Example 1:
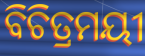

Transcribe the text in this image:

ବିଚିତ୍ରମୟୀ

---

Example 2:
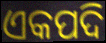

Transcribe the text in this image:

ଏକପଦି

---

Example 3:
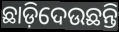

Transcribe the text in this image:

ଛାଡ଼ିଦେଉଛନ୍ତି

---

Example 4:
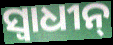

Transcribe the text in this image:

ସ୍ଵାଧୀନ୍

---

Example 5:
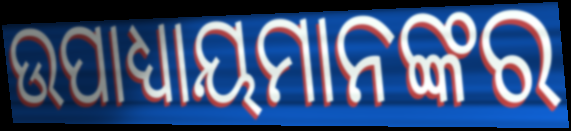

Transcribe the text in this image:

ଉପାଧ୍ୟାୟମାନଙ୍କର